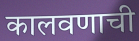
कालवणाची